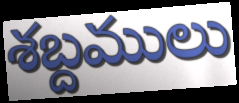
శబ్దములు